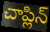
చాప్లిన్